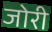
जोरी